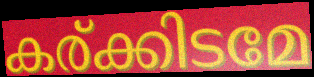
കര്ക്കിടമേ